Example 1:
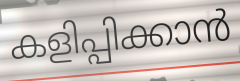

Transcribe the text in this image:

കളിപ്പിക്കാൻ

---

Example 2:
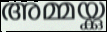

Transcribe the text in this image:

അമ്മയ്ക്കു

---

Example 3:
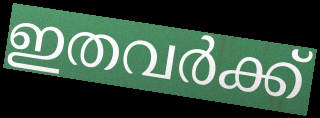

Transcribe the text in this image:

ഇതവർക്ക്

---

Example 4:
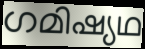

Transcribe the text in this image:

ഗമിഷ്യഥ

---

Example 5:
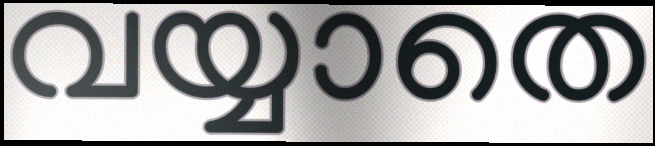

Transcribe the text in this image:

വയ്യാതെ